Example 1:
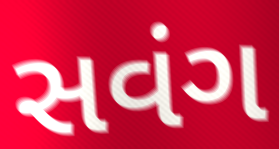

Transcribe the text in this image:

સવંગ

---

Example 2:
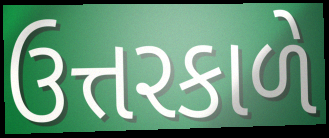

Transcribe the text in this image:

ઉત્તરકાળે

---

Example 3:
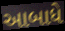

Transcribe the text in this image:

આબાધે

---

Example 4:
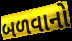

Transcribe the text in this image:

બળવાનો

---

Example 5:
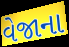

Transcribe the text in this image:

વેજાના